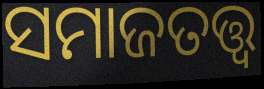
ସମାଜତତ୍ତ୍ବ